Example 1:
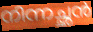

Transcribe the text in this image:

നിന്നച്ഛൻ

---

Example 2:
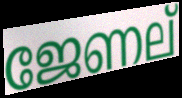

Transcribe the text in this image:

ജേണല്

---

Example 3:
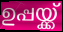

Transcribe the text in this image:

ഉപ്പയ്ക്ക്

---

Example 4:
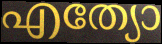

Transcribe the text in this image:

എത്യോ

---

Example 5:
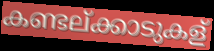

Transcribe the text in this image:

കണ്ടല്ക്കാടുകള്